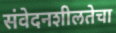
संवेदनशीलतेचा